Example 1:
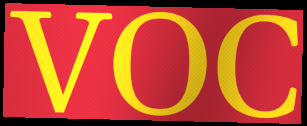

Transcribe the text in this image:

VOC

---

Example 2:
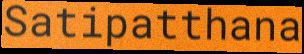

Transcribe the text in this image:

Satipatthana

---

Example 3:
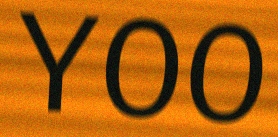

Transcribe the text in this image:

YOO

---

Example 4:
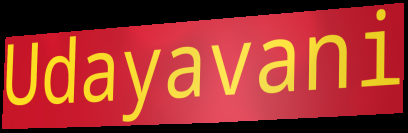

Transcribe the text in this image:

Udayavani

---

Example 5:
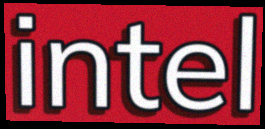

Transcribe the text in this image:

intel